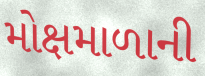
મોક્ષમાળાની